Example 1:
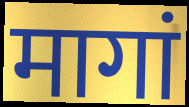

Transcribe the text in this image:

मागां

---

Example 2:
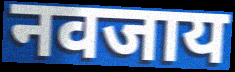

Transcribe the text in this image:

नवजाय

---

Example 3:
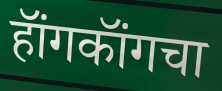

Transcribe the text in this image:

हॉंगकॉंगचा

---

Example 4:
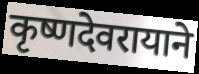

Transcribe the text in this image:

कृष्णदेवरायाने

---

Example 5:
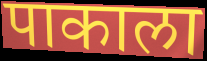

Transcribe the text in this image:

पाकाला